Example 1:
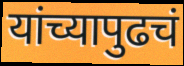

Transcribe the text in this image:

यांच्यापुढचं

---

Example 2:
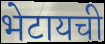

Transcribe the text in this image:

भेटायची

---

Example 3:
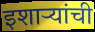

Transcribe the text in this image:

इशाऱ्यांची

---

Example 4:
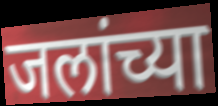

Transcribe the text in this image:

जलांच्या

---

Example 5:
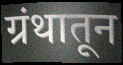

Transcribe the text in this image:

ग्रंथातून